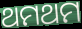
ଥମଥମ